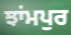
ਝਾਂਮਪੁਰ